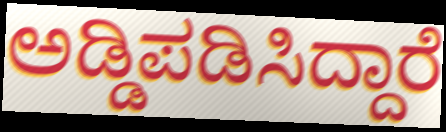
ಅಡ್ಡಿಪಡಿಸಿದ್ದಾರೆ